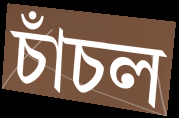
চাঁচল